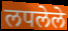
लपलेले